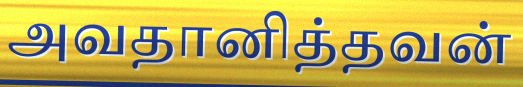
அவதானித்தவன்